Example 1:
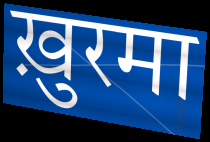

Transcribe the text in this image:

ख़ुरमा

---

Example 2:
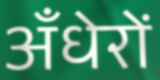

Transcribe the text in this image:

अँधेरों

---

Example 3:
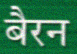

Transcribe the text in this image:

बैरन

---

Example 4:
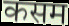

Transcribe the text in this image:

कसम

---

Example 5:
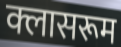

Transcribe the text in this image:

क्‍लासरूम